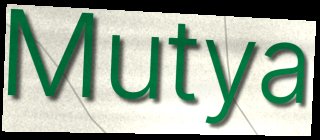
Mutya